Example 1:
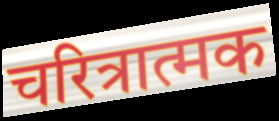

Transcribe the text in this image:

चरित्रात्मक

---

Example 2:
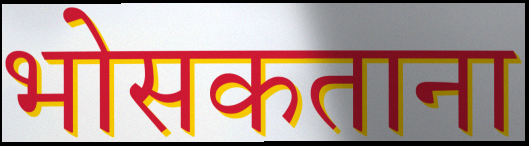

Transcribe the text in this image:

भोसकताना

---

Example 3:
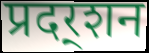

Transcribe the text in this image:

प्रदर्शन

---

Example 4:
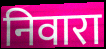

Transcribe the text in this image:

निवारा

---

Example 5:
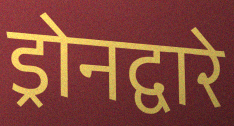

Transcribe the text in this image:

ड्रोनद्वारे